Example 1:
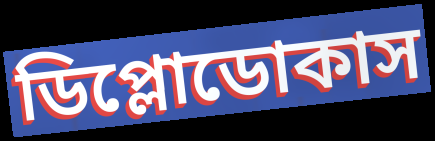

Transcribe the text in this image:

ডিপ্লোডোকাস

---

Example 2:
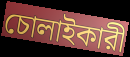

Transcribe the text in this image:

চোলাইকারী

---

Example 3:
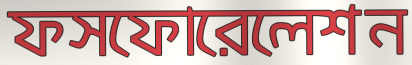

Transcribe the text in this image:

ফসফোরেলেশন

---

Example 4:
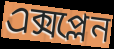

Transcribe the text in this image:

এক্সপ্লেন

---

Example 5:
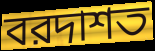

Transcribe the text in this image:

বরদাশত